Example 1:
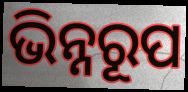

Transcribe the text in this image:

ଭିନ୍ନରୂପ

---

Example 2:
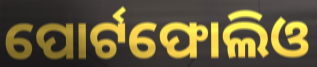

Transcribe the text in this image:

ପୋର୍ଟଫୋଲିଓ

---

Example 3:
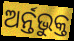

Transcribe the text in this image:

ଅର୍ନ୍ତଭୁକ୍ତ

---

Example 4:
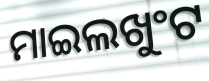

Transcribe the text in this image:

ମାଇଲଖୁଂଟ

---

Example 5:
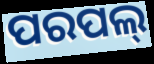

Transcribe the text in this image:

ପରପଲ୍